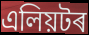
এলিয়টৰ